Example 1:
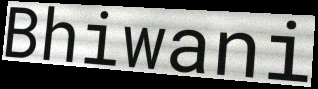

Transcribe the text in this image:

Bhiwani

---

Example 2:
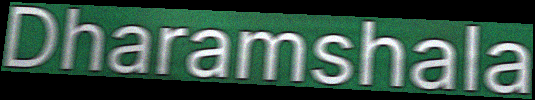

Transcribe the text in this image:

Dharamshala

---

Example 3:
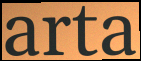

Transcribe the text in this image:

arta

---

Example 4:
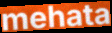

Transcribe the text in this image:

mehata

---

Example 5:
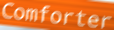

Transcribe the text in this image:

Comforter